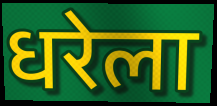
धरेला